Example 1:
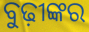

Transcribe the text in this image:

ବୁଢ଼ୀଙ୍କର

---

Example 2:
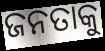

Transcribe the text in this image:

ଜନତାକୁ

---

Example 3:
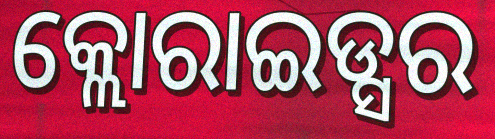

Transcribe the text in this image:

କ୍ଲୋରାଇଡ୍ସର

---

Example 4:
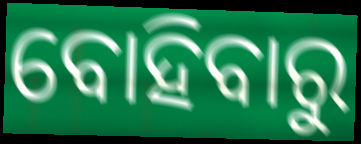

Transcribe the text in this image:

ବୋହିବାରୁ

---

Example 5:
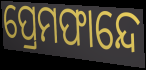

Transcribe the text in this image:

ପ୍ରେମଫାନ୍ଦେ